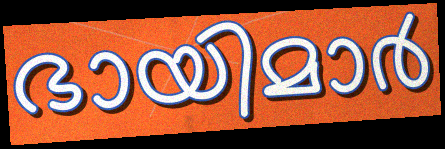
ഭായിമാർ